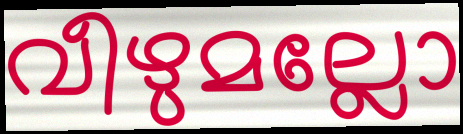
വീഴുമല്ലോ